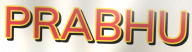
PRABHU